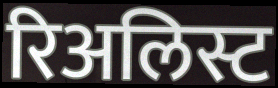
रिअलिस्ट